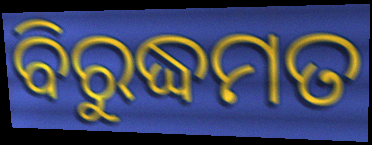
ବିରୁଦ୍ଧମତ